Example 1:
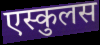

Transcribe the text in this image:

एस्कुलस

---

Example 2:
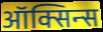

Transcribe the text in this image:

ऑक्सिन्स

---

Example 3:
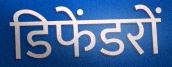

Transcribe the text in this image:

डिफेंडरों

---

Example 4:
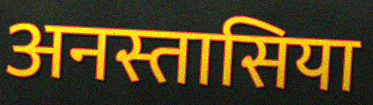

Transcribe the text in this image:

अनस्तासिया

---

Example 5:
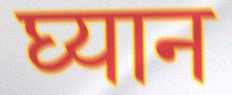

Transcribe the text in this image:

घ्यान